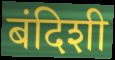
बंदिशी